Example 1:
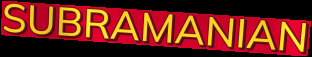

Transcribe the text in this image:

SUBRAMANIAN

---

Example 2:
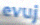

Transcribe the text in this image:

evuj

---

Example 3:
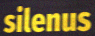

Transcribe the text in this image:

silenus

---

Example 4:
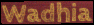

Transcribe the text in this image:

Wadhia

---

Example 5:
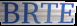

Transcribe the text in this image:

BRTE